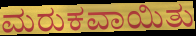
ಮರುಕವಾಯಿತು